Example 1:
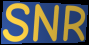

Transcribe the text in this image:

SNR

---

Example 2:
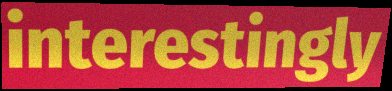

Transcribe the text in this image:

interestingly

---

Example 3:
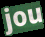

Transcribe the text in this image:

jou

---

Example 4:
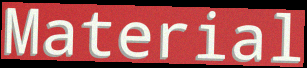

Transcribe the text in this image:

Material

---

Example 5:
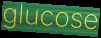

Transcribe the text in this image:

glucose